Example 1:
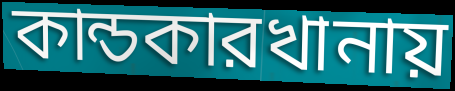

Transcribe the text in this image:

কান্ডকারখানায়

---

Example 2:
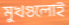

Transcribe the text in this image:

মুখগুলোই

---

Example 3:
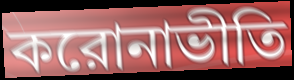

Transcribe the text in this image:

করোনাভীতি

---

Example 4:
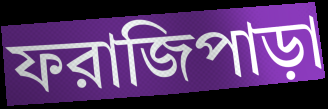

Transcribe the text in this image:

ফরাজিপাড়া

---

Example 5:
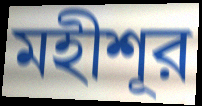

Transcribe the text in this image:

মহীশূর